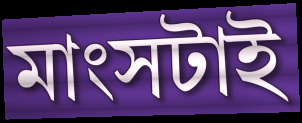
মাংসটাই